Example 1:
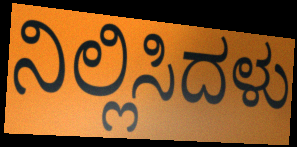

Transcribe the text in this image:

ನಿಲ್ಲಿಸಿದಳು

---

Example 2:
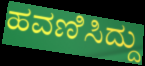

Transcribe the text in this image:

ಹವಣಿಸಿದ್ದು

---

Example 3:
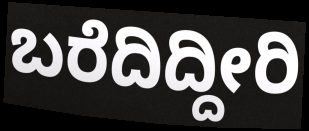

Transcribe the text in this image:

ಬರೆದಿದ್ದೀರಿ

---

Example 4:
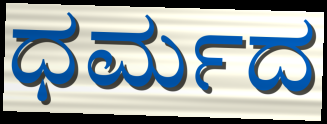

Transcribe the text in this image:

ಧರ್ಮದ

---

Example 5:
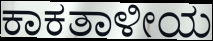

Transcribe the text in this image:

ಕಾಕತಾಳೀಯ